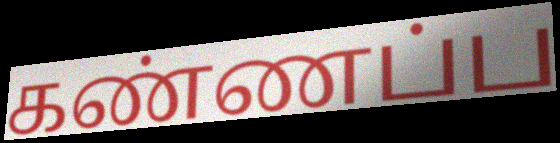
கண்ணப்ப